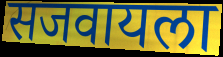
सजवायला